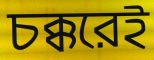
চক্করেই